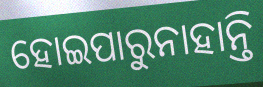
ହୋଇପାରୁନାହାନ୍ତି